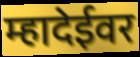
म्हादेईवर